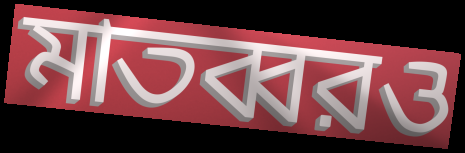
মাতব্বরও